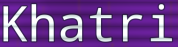
Khatri